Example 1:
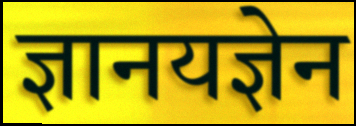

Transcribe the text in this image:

ज्ञानयज्ञेन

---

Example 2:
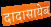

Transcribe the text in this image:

दादासायेब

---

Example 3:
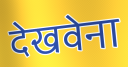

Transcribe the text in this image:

देखवेना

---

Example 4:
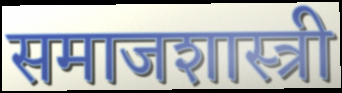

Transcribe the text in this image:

समाजशास्त्री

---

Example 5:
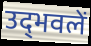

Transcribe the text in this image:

उद्‍भवलें